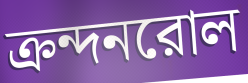
ক্রন্দনরোল